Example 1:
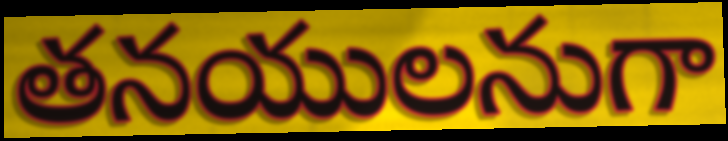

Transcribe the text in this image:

తనయులనుగా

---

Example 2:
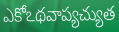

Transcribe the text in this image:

ఎకోఽథవాప్యచ్యుత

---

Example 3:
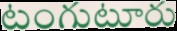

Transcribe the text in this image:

టంగుటూరు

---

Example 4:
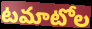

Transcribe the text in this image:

టమాటోల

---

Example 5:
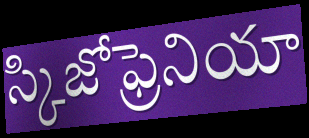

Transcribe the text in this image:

స్కిజోఫ్రెనియా